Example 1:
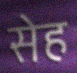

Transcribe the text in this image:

सेह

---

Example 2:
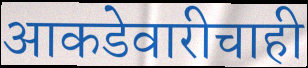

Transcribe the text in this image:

आकडेवारीचाही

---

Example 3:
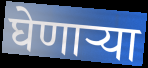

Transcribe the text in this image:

घेणार्‍या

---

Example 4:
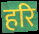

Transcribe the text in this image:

हरि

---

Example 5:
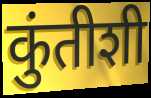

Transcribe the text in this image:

कुंतीशी